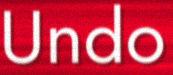
Undo